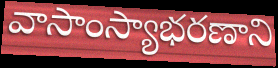
వాసాంస్యాభరణాని